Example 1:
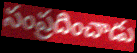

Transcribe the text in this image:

సంప్రదించాడు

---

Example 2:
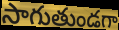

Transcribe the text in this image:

సాగుతుండగా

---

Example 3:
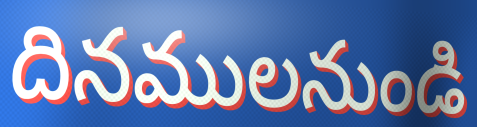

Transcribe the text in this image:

దినములనుండి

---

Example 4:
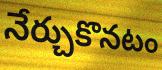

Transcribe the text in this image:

నేర్చుకొనటం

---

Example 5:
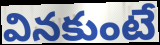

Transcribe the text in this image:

వినకుంటే